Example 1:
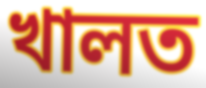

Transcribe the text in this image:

খালত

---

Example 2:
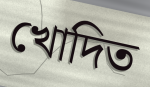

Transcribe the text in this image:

খোদিত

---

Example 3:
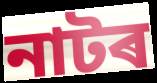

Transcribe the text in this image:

নাটৰ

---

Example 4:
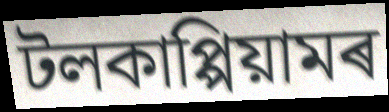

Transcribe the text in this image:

টলকাপ্পিয়ামৰ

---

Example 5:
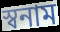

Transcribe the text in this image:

স্বনাম